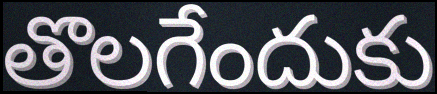
తొలగేందుకు